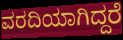
ವರದಿಯಾಗಿದ್ದರೆ